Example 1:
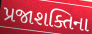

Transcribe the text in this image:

પ્રજાશક્તિના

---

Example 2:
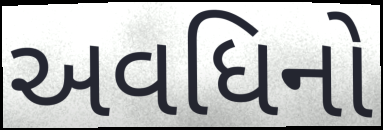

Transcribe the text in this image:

અવધિનો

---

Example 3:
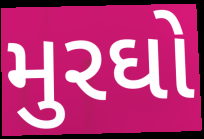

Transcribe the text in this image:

મુરઘો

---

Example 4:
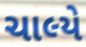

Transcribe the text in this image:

ચાલ્યે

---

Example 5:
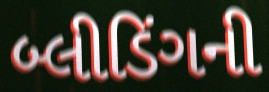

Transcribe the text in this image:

બ્લીડિંગની